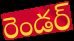
రెండర్